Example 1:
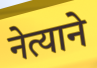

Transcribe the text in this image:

नेत्याने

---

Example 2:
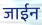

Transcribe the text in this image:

जाईन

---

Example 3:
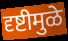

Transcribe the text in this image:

दृष्टीमुळे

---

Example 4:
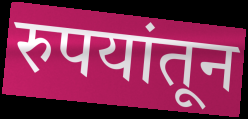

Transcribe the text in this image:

रुपयांतून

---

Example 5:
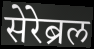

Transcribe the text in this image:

सेरेब्रल